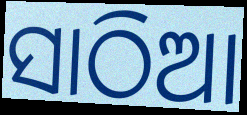
ସାଠିଆ